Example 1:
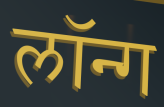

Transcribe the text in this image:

लॉन्ग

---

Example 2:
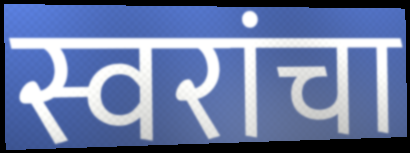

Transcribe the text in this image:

स्वरांचा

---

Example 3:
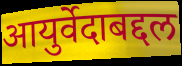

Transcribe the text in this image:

आयुर्वेदाबद्दल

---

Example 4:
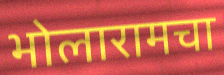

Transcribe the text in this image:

भोलारामचा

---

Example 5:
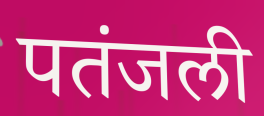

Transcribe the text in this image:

पतंजली